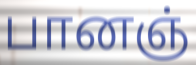
பானஞ்